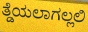
ತ್ಡೆಯಲಾಗಲ್ಲಲಿ